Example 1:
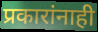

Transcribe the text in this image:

प्रकारांनाही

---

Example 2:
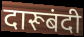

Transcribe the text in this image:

दारूबंदी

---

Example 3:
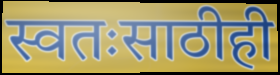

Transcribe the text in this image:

स्वतःसाठीही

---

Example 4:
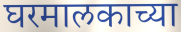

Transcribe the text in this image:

घरमालकाच्या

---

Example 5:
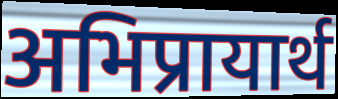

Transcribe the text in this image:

अभिप्रायार्थ